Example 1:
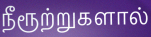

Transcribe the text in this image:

நீரூற்றுகளால்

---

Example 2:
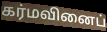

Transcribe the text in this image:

கர்மவினைப்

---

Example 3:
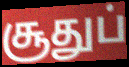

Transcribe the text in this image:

சூதுப்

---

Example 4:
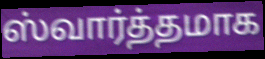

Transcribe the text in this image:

ஸ்வார்த்தமாக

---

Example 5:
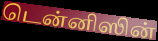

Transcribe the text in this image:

டென்னிஸின்